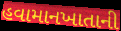
હવામાનખાતાની